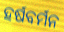
ହର୍ଷବର୍ମନ